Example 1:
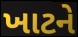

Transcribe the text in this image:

ખાટને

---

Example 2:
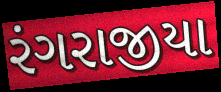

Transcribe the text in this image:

રંગરાજીયા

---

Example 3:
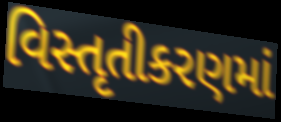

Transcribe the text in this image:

વિસ્તૃતીકરણમાં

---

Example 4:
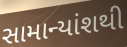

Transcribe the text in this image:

સામાન્યાંશથી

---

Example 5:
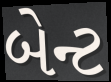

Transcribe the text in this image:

બેન્ટ